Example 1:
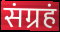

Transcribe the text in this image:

संग्रहं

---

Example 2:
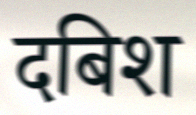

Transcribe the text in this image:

दबिश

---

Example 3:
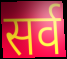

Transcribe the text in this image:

सर्व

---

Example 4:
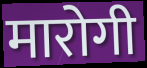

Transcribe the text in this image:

मारोगी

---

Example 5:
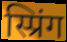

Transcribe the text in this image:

स्प्रिंग